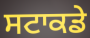
ਸਟਾਕਡੇ